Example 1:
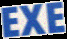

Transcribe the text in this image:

EXE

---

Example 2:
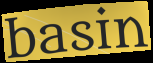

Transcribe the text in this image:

basin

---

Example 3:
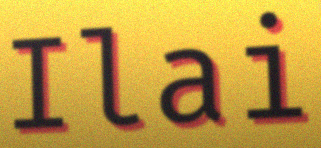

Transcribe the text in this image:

Ilai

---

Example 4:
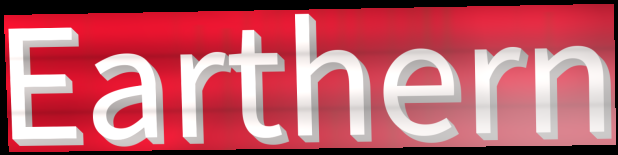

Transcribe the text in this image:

Earthern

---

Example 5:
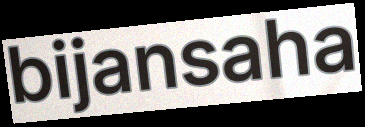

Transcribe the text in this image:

bijansaha